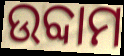
ଉବ୍ଦାମ